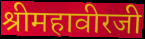
श्रीमहावीरजी